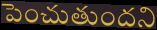
పెంచుతుందని